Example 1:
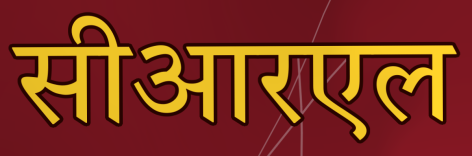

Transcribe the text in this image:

सीआरएल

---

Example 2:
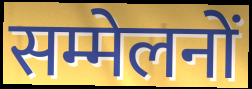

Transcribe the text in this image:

सम्‍मेलनों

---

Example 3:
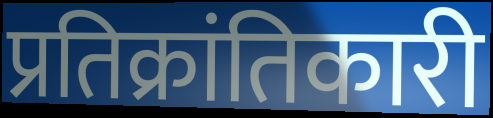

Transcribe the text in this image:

प्रतिक्रांतिकारी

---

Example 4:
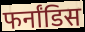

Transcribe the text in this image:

फर्नांडिस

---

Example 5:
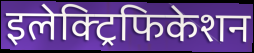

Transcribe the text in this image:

इलेक्ट्रिफिकेशन